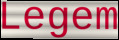
Legem